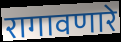
रागावणारे